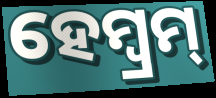
ହେମ୍ବ୍ରମ୍